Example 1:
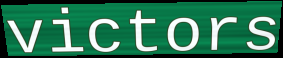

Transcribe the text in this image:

victors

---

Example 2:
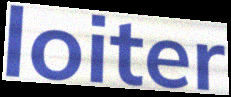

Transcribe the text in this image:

loiter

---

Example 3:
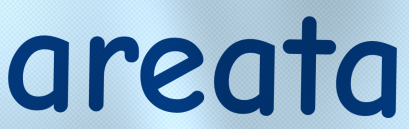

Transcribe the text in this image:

areata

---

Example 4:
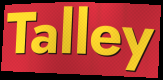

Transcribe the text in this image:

Talley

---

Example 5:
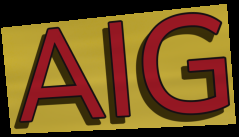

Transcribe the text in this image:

AIG